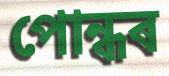
পোন্ধৰ